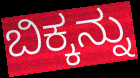
ಬಿಕ್ಕನ್ನು